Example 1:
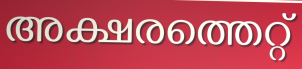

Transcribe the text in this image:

അക്ഷരത്തെറ്റ്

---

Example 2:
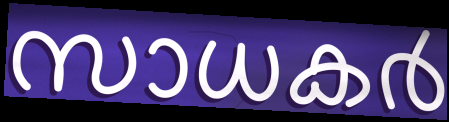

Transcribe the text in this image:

സാധകർ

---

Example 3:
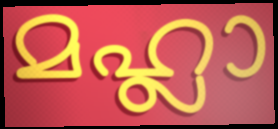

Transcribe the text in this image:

മഹ്ലാ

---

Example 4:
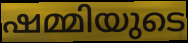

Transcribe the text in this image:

ഷമ്മിയുടെ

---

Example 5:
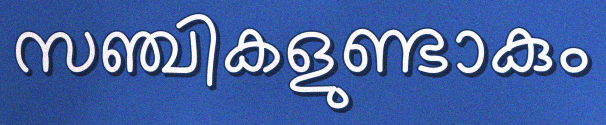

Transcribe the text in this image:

സഞ്ചികളുണ്ടാകും